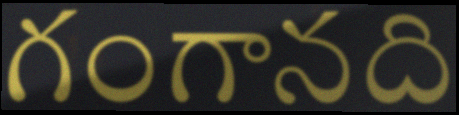
గంగానది